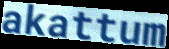
akattum